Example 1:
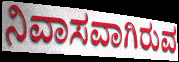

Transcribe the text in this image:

ನಿವಾಸವಾಗಿರುವ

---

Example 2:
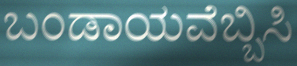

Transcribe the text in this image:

ಬಂಡಾಯವೆಬ್ಬಿಸಿ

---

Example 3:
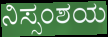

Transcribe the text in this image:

ನಿಸ್ಸಂಶಯ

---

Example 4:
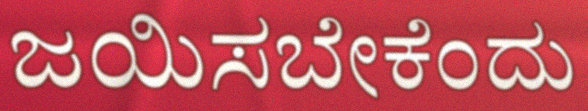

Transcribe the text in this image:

ಜಯಿಸಬೇಕೆಂದು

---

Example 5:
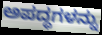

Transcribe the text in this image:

ಅಪದ್ಧಗಳನ್ನು